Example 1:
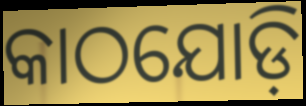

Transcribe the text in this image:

କାଠଯୋଡ଼ି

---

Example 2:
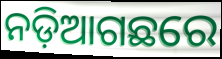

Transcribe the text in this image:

ନଡ଼ିଆଗଛରେ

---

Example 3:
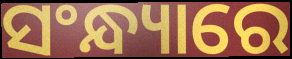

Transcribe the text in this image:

ସଂନ୍ଧ୍ୟାରେ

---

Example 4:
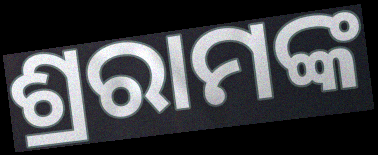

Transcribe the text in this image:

ଶ୍ରରାମଙ୍କ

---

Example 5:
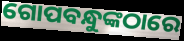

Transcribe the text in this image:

ଗୋପବନ୍ଧୁଙ୍କଠାରେ